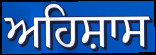
ਅਹਿਸ਼ਾਸ